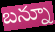
బన్నూ